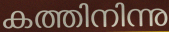
കത്തിനിന്നു